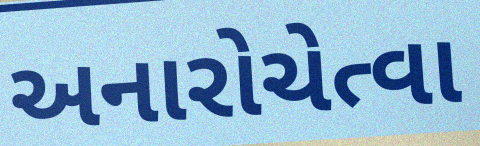
અનારોચેત્વા